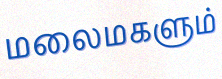
மலைமகளும்